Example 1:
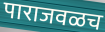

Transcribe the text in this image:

पाराजवळच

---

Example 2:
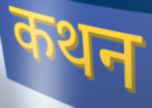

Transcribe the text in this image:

कथन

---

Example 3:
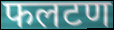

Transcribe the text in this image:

फलटण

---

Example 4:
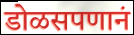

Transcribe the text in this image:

डोळसपणानं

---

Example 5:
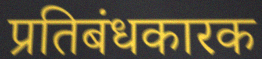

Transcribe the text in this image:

प्रतिबंधकारक